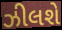
ઝીલશે